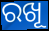
ରଖୂ